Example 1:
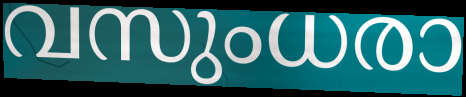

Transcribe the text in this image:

വസുംധരാ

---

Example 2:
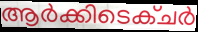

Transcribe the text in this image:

ആർക്കിടെക്ചർ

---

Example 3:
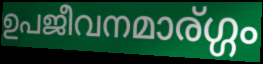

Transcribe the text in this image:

ഉപജീവനമാര്ഗ്ഗം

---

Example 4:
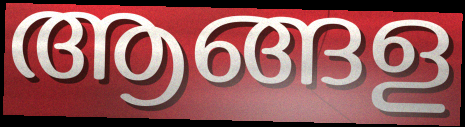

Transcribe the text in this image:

ആങ്ങള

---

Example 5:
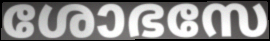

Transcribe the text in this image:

ശോഭസേ